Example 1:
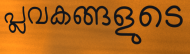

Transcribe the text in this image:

പ്ലവകങ്ങളുടെ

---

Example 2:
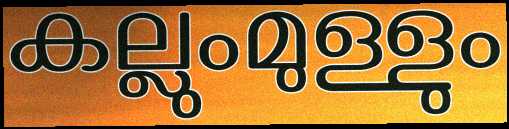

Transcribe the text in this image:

കല്ലുംമുള്ളും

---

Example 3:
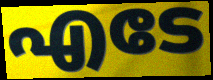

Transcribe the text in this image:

എടേ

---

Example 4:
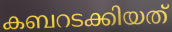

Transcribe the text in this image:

കബറടക്കിയത്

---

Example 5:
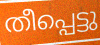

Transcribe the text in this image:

തീപ്പെട്ടു